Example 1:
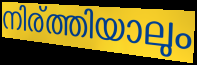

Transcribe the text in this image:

നിര്ത്തിയാലും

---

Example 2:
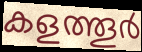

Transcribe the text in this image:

കളത്തൂർ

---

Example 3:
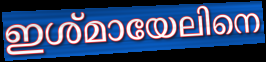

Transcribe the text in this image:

ഇശ്മായേലിനെ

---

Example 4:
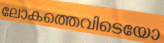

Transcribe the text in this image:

ലോകത്തെവിടെയോ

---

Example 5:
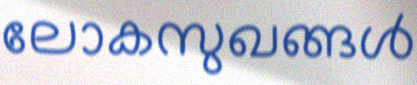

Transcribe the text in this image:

ലോകസുഖങ്ങൾ